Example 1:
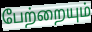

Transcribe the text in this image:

பேற்றையும்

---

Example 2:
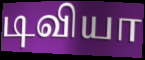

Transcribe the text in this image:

டிவியா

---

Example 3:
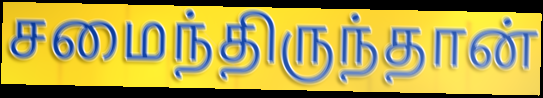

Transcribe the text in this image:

சமைந்திருந்தான்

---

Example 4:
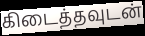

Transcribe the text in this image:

கிடைத்தவுடன்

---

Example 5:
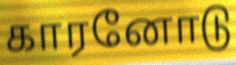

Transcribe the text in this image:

காரனோடு